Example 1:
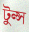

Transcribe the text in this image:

টুল্স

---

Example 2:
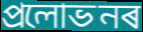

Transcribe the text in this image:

প্ৰলোভনৰ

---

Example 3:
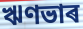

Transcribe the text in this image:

ঋণভাৰ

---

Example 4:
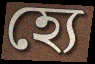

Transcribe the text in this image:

হ্যে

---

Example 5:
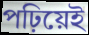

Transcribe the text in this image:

পঢ়িয়েই